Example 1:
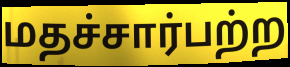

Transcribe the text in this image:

மதச்சார்பற்ற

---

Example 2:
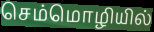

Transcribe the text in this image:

செம்மொழியில்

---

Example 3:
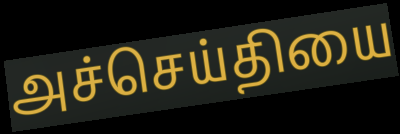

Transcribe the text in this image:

அச்செய்தியை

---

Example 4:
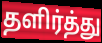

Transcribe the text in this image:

தளிர்த்து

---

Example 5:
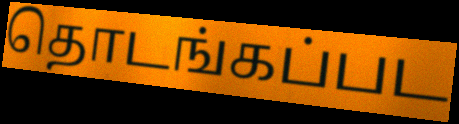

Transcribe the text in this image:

தொடங்கப்பட